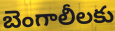
బెంగాలీలకు